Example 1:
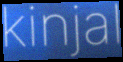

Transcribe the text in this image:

kinjal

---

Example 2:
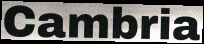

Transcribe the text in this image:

Cambria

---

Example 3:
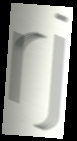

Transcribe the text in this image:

rj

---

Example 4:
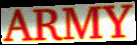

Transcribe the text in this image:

ARMY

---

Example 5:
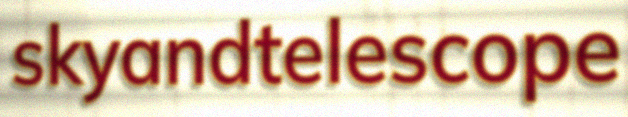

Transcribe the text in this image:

skyandtelescope